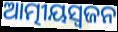
ଆତ୍ମୀୟସ୍ୱଜନ